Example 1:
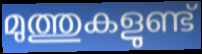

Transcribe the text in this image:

മുത്തുകളുണ്ട്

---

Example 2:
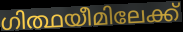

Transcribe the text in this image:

ഗിത്ഥയീമിലേക്ക്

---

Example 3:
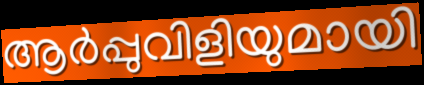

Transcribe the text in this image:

ആർപ്പുവിളിയുമായി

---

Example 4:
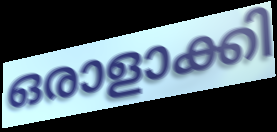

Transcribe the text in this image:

ഒരാളാക്കി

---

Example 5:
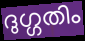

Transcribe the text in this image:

ദുഗ്ഗതിം